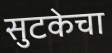
सुटकेचा